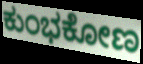
ಕುಂಭಕೋಣ